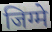
जिग्मे